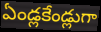
ఏండ్లకేండ్లుగా